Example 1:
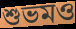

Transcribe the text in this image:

শুভমও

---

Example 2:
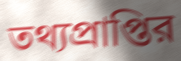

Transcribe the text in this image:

তথ্যপ্রাপ্তির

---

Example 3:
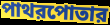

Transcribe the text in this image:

পাথরপোতার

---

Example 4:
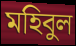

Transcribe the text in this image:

মহিবুল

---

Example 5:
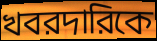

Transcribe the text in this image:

খবরদারিকে